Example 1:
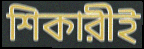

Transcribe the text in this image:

শিকারীই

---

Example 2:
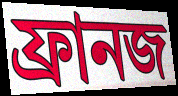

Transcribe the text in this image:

ফ্রানজ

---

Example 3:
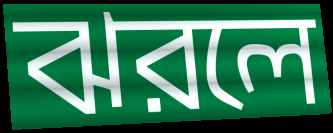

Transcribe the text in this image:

ঝরলে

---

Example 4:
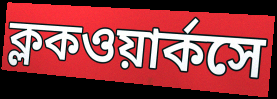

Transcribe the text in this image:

ক্লকওয়ার্কসে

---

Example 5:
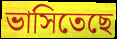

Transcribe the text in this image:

ভাসিতেছে